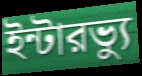
ইন্টারভ্যু